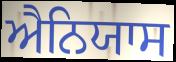
ਐਨਿਯਾਸ